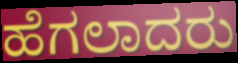
ಹೆಗಲಾದರು